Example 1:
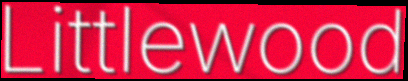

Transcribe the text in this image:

Littlewood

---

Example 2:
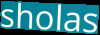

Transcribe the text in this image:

sholas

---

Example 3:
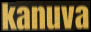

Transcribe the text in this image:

kanuva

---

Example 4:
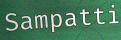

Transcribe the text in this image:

Sampatti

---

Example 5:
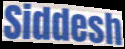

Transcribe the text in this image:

Siddesh